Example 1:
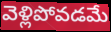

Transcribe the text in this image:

వెళ్లిపోవడమే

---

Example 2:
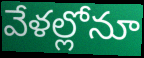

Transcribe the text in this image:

వేళల్లోనూ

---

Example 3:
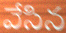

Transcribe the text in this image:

వేసిన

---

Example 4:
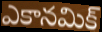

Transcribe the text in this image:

ఎకానమిక్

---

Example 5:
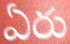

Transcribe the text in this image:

ఏరు